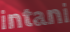
intani